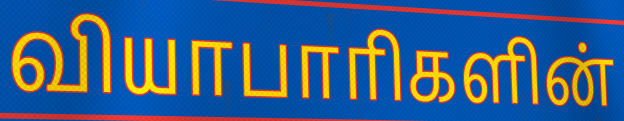
வியாபாரிகளின்